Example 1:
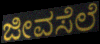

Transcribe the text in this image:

ಜೀವಸೆಲೆ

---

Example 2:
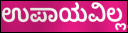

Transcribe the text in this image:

ಉಪಾಯವಿಲ್ಲ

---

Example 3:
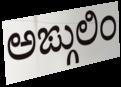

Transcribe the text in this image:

ಅಙ್ಗುಲಿಂ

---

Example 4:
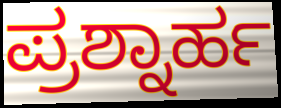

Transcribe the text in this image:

ಪ್ರಶ್ನಾರ್ಹ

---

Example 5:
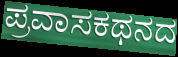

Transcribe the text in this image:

ಪ್ರವಾಸಕಥನದ